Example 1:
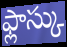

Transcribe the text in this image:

ఫ్లాస్కు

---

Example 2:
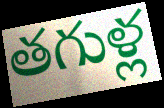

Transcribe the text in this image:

తగుళ్ల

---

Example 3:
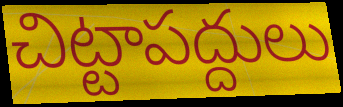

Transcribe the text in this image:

చిట్టాపద్దులు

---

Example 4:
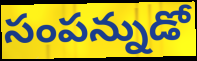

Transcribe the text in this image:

సంపన్నుడో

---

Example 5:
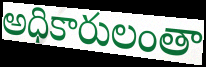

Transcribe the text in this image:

అధికారులంతా